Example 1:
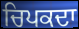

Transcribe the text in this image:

ਚਿਪਕਦਾ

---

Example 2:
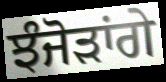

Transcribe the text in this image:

ਝੰਜੋੜਾਂਗੇ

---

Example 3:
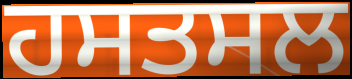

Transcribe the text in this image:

ਹਸਤਸਲ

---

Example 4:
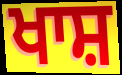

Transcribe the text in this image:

ਖਾਸ਼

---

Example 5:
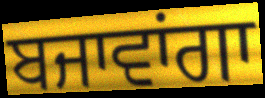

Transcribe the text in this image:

ਬਜਾਵਾਂਗਾ